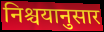
निश्चयानुसार